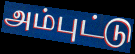
அம்புட்டு